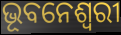
ଭୂବନେଶ୍ୱରୀ